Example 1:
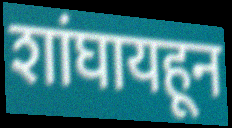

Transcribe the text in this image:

शांघायहून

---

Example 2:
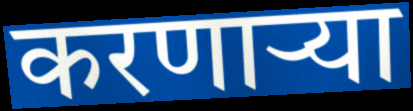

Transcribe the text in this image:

करणार्‍या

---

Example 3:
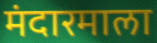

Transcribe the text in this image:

मंदारमाला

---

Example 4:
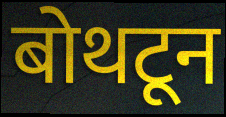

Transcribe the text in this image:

बोथटून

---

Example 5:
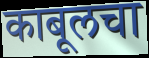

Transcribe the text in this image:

काबूलचा